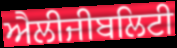
ਐਲੀਜੀਬਲਿਟੀ